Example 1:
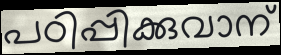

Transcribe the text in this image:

പഠിപ്പിക്കുവാന്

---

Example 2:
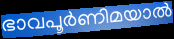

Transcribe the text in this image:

ഭാവപൂർണിമയാൽ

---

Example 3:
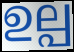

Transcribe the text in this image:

ഉല്പ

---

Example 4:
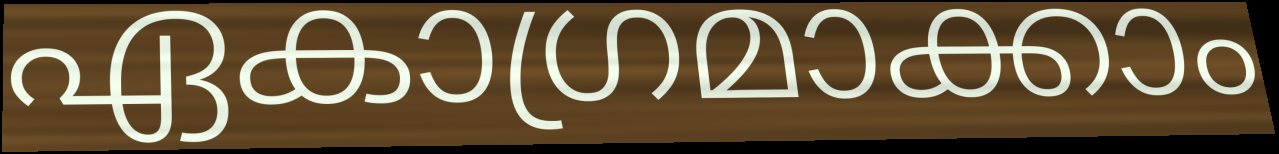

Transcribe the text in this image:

ഏകാഗ്രമാക്കാം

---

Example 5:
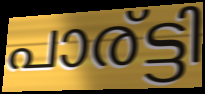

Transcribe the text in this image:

പാര്ട്ടി